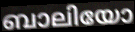
ബാലിയോ